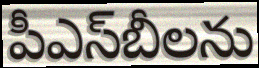
పీఎస్‌బీలను